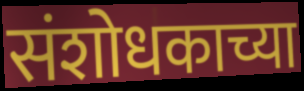
संशोधकाच्या